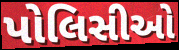
પોલિસીઓ